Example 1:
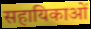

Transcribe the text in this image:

सहायिकाओं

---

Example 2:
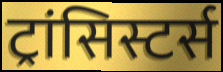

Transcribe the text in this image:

ट्रांसिस्टर्स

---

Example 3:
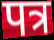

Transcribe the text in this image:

पत्र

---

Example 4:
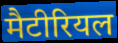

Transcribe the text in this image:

मैटीरियल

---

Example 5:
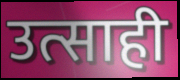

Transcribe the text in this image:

उत्साही